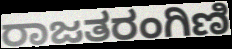
ರಾಜತರಂಗಿಣಿ